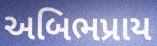
અબિભપ્રાય